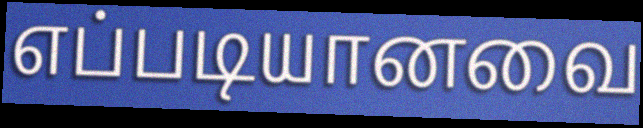
எப்படியானவை